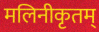
मलिनीकृतम्